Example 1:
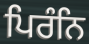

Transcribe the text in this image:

ਪਿਰੰਨਿ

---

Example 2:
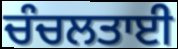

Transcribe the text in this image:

ਚੰਚਲਤਾਈ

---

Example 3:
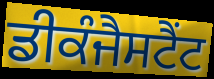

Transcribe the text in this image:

ਡੀਕੰਜੈਸਟੈਂਟ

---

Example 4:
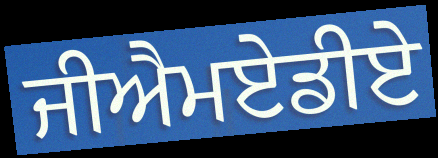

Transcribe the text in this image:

ਜੀਐਮਏਡੀਏ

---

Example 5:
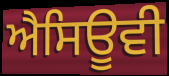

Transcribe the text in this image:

ਐਸਿਊਵੀ